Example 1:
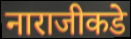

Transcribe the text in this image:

नाराजीकडे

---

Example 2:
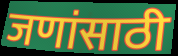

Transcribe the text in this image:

जणांसाठी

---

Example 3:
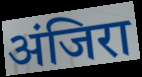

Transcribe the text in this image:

अंजिरा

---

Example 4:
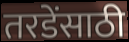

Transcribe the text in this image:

तरडेंसाठी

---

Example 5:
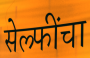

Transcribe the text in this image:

सेल्फींचा